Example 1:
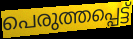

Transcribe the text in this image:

പെരുത്തപ്പെട്ട്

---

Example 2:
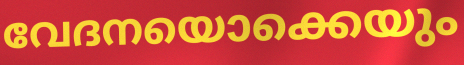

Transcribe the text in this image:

വേദനയൊക്കെയും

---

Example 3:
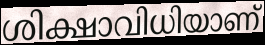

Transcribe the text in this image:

ശിക്ഷാവിധിയാണ്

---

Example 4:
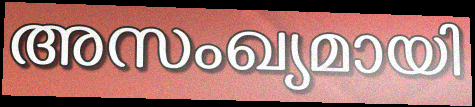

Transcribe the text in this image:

അസംഖ്യമായി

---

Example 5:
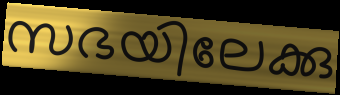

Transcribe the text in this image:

സഭയിലേക്കു